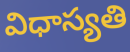
విధాస్యతి